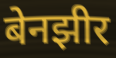
बेनझीर